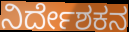
ನಿರ್ದೇಶಕನ